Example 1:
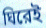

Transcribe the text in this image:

ঘিরেই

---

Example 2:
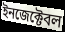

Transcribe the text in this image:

ইনজেক্টেবল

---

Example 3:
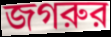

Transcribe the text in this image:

জগরুর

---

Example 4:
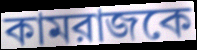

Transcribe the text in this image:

কামরাজকে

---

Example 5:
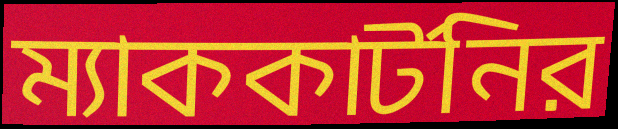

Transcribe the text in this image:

ম্যাককার্টনির